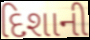
દિશાની